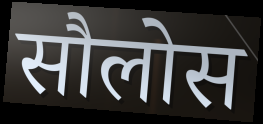
सौलोस